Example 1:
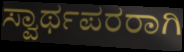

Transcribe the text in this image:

ಸ್ವಾರ್ಥಪರರಾಗಿ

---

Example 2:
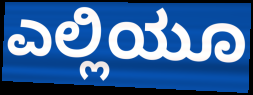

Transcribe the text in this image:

ಎಲ್ಲಿಯೂ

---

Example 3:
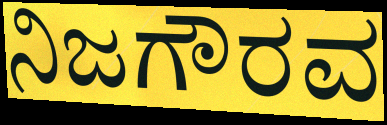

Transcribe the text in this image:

ನಿಜಗೌರವ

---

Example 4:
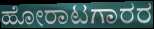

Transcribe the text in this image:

ಹೋರಾಟಗಾರರ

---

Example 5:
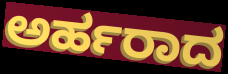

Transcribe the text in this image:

ಅರ್ಹರಾದ